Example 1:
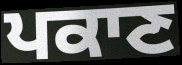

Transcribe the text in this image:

ਪਕਾਣ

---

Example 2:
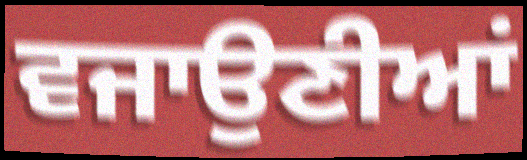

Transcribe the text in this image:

ਵਜਾਉਣੀਆਂ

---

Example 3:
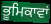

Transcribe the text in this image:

ਭੂਮਿਕਾਵਾਂ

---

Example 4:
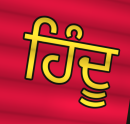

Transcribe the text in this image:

ਹਿੰਦੂ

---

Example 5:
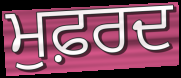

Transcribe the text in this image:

ਮੁਫ਼ਰਦ